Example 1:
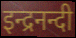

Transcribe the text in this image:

इन्द्रनन्दी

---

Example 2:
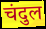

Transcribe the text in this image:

चंदुल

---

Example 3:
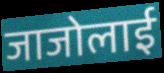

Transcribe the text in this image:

जाजोलाई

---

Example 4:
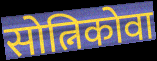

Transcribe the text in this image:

सोत्निकोवा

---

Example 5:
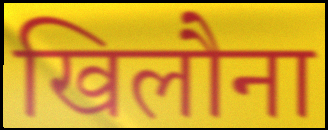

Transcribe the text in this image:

खिलौना